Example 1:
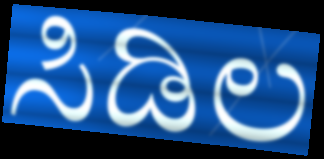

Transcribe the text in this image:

ಸಿಡಿಲ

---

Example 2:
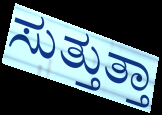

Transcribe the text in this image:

ಸುತ್ತುತ್ತಾ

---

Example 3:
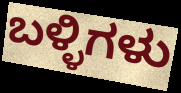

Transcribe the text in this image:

ಬಳ್ಳಿಗಳು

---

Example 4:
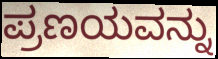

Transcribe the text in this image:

ಪ್ರಣಯವನ್ನು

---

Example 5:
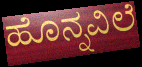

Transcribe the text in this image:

ಹೊನ್ನವಿಲೆ